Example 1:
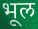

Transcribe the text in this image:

भूल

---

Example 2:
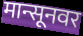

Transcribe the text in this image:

मान्सूनवर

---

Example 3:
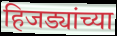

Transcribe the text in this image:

हिजड्यांच्या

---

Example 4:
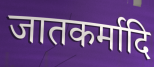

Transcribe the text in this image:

जातकर्मादि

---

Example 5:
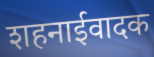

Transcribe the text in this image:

शहनाईवादक